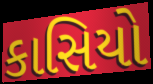
કાસિયો